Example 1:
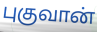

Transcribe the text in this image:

புகுவான்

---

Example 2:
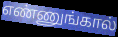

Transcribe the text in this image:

எண்ணுங்கால்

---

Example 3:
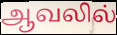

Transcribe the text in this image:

ஆவலில்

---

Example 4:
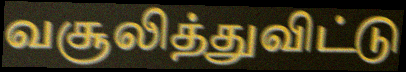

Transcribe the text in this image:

வசூலித்துவிட்டு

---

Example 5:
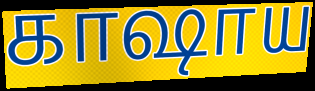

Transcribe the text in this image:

காஷாய